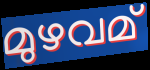
മുഴവമ്